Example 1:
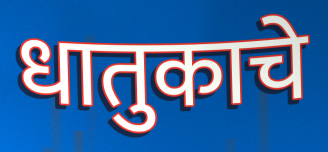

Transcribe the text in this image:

धातुकाचे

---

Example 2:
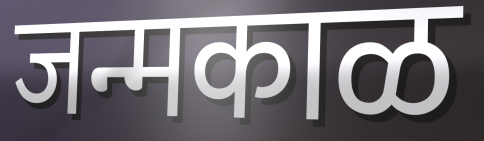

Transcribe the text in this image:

जन्मकाळ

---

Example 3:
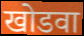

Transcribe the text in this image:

खोडवा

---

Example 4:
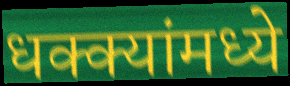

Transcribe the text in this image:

धक्क्यांमध्ये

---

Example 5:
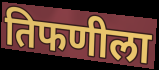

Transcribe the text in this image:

तिफणीला